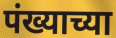
पंख्याच्या